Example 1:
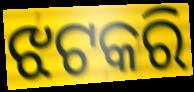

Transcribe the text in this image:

ଝଟକରି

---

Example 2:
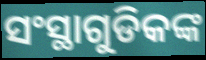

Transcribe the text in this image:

ସଂସ୍ଥାଗୁଡିକଙ୍କ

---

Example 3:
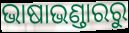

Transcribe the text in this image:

ଭାଷାଭଣ୍ଡାରରୁ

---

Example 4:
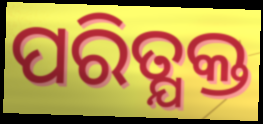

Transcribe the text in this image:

ପରିତ୍ଯକ୍ତ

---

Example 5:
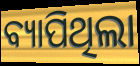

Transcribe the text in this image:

ବ୍ୟାପିଥିଲା